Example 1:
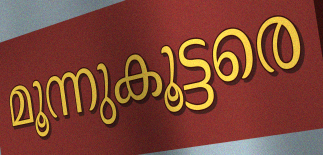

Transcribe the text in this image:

മൂന്നുകൂട്ടരെ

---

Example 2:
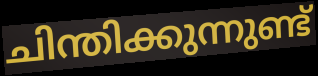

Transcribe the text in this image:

ചിന്തിക്കുന്നുണ്ട്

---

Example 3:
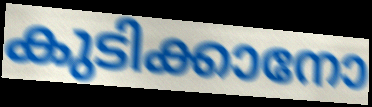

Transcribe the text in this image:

കുടിക്കാനോ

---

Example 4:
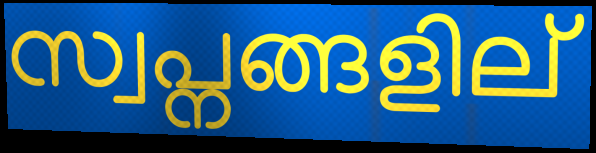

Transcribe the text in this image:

സ്വപ്നങ്ങളില്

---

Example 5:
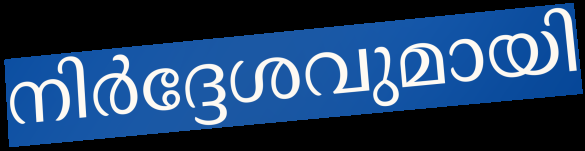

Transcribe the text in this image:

നിർദ്ദേശവുമായി